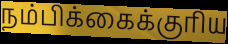
நம்பிக்கைக்குரிய